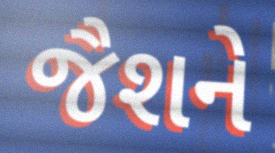
જૈશને